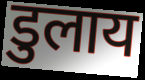
डुलाय